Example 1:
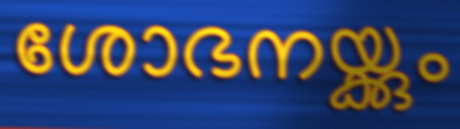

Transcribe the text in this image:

ശോഭനയ്ക്കും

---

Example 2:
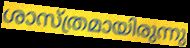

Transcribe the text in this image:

ശാസ്ത്രമായിരുന്നു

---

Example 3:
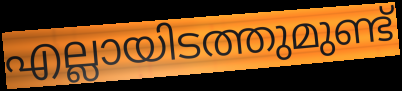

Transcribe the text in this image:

എല്ലായിടത്തുമുണ്ട്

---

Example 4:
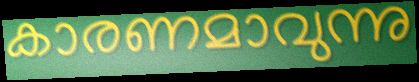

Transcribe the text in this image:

കാരണമാവുന്നു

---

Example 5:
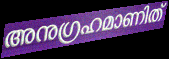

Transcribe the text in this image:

അനുഗ്രഹമാണിത്